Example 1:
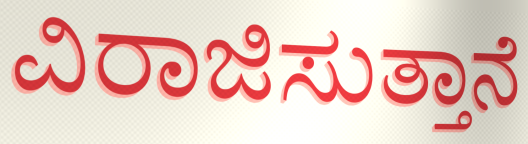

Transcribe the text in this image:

ವಿರಾಜಿಸುತ್ತಾನೆ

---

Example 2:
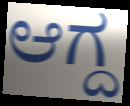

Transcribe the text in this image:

ಆಗ್ದ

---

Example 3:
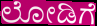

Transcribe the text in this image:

ಲೋಡಿಗೆ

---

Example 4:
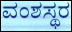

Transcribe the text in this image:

ವಂಶಸ್ಥರ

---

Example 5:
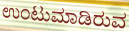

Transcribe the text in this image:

ಉಂಟುಮಾಡಿರುವ